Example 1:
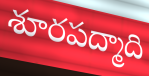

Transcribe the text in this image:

శూరపద్మాది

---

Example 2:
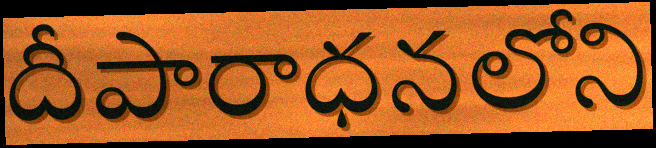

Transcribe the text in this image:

దీపారాధనలోని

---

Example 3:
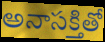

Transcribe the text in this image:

అనాసక్తితో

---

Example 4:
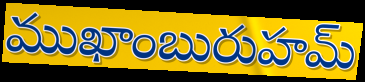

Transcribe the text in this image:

ముఖాంబురుహమ్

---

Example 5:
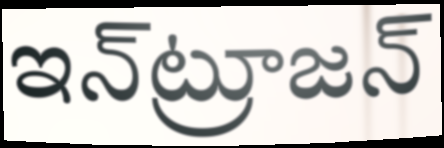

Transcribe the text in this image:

ఇన్‌ట్రూజన్